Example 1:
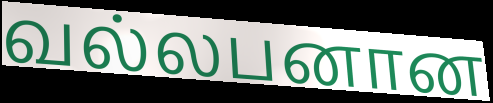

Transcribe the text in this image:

வல்லபனான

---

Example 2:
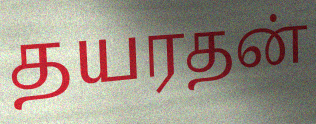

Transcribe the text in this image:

தயரதன்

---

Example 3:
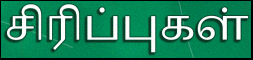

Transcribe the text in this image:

சிரிப்புகள்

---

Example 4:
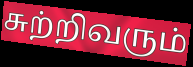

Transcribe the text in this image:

சுற்றிவரும்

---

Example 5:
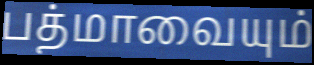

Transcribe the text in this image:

பத்மாவையும்